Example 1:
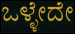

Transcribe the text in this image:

ಒಳ್ಳೇದೇ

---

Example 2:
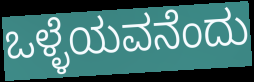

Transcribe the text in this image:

ಒಳ್ಳೆಯವನೆಂದು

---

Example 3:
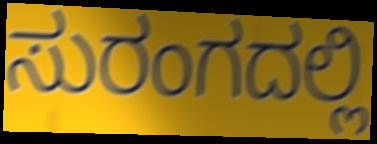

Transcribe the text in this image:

ಸುರಂಗದಲ್ಲಿ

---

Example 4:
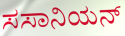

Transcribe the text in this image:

ಸಸಾನಿಯನ್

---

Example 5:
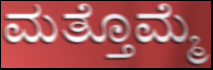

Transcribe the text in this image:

ಮತ್ತೊಮ್ಮೆ